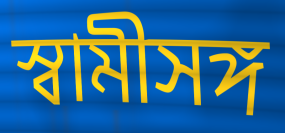
স্বামীসঙ্গ